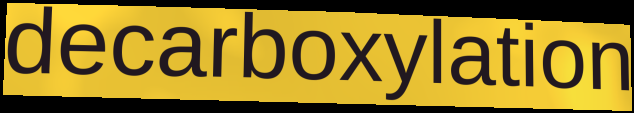
decarboxylation